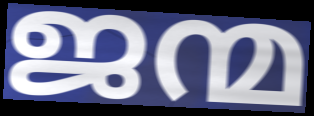
ജന്മ